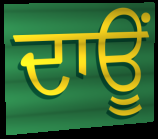
ਦਾਊਂ